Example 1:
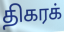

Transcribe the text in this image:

திகரக்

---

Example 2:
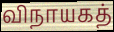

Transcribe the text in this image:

விநாயகத்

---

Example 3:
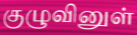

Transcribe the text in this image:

குழுவினுள்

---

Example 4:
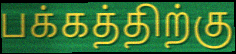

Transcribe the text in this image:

பக்கத்திற்கு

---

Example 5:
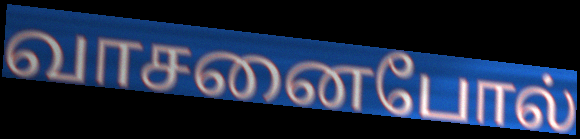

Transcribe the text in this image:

வாசனைபோல்